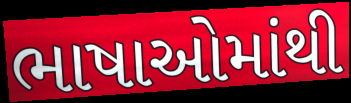
ભાષાઓમાંથી